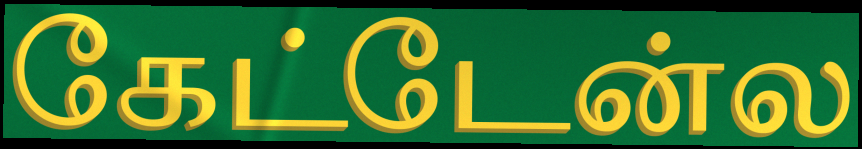
கேட்டேன்ல